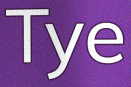
Tye